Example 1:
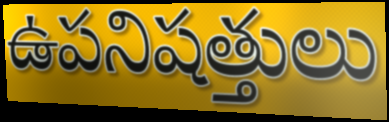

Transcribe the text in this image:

ఉపనిషత్తులు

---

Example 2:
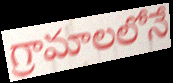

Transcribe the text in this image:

గ్రామాలలోనే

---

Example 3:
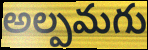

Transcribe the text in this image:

అల్పమగు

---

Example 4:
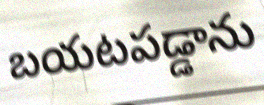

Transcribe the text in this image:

బయటపడ్డాను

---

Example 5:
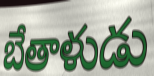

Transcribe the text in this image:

బేతాళుడు